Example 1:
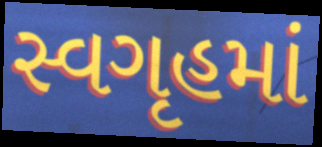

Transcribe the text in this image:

સ્વગૃહમાં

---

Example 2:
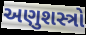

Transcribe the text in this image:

અણુશસ્ત્રો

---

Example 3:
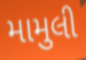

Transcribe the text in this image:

મામુલી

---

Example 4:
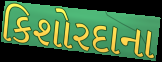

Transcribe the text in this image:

કિશોરદાના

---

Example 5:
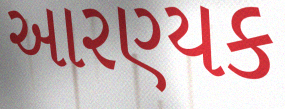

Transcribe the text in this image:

આરણ્યક